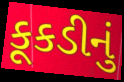
કૂકડીનું